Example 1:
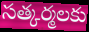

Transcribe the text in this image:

సత్కర్మలకు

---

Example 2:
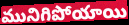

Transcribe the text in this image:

మునిగిపోయాయి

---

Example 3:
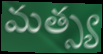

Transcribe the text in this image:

మత్స్య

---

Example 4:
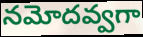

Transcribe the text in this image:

నమోదవ్వగా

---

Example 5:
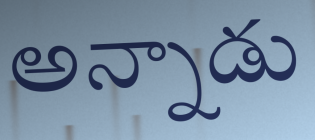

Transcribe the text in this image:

అన్నాడు